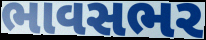
ભાવસભર